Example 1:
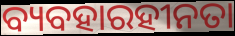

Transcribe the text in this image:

ବ୍ୟବହାରହୀନତା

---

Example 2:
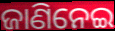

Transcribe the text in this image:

ଜାଣିନେଇ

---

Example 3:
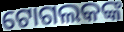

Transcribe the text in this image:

ଟୋଗଲକଙ୍କ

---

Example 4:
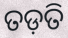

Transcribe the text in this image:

ତଡ଼ତି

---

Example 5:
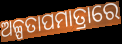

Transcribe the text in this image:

ଅଳ୍ପତାପମାତ୍ରାରେ